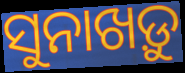
ସୁନାଖଡ଼ୁ